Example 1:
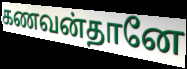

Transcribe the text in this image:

கணவன்தானே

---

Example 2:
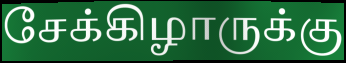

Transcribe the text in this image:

சேக்கிழாருக்கு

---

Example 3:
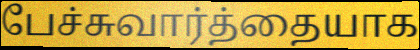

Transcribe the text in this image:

பேச்சுவார்த்தையாக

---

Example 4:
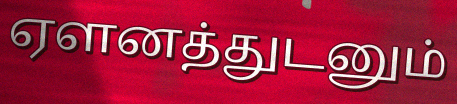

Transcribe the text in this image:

ஏளனத்துடனும்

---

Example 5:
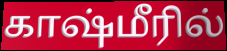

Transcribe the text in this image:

காஷ்மீரில்